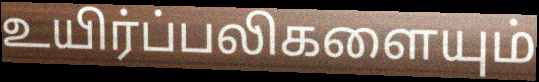
உயிர்ப்பலிகளையும்